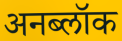
अनब्लॉक